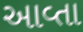
આવ્તા